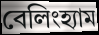
বেলিংহ্যাম